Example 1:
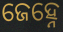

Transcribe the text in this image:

ଜେହ୍ନେ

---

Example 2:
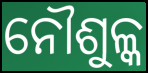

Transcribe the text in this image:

ନୌଶୁଳ୍କ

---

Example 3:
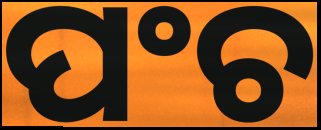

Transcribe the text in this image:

ପଂଚ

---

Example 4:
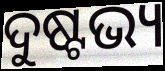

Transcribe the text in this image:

ଦୁଷ୍ଟଭ୍ୟ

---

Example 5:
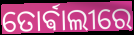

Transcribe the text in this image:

ତୋର୍ଵାଲୀରେ